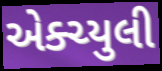
એક્ચ્યુલી